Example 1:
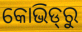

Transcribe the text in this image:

କୋଭିଡ୍‌ରୁ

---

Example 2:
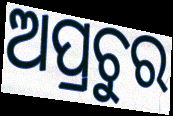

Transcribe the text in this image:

ଅପ୍ରଚୁର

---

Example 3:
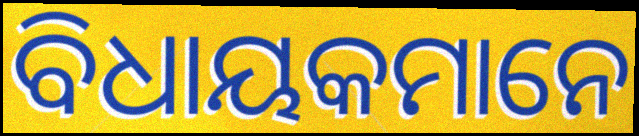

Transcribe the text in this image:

ବିଧାୟକମାନେ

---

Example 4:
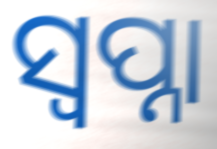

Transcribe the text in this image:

ସ୍ଵପ୍ନା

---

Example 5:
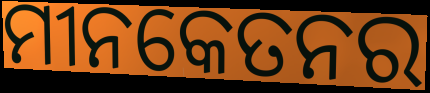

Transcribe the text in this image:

ମୀନକେତନର